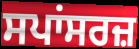
ਸਪਾਂਸਰਜ਼